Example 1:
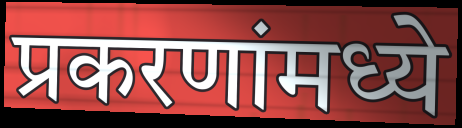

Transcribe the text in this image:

प्रकरणांमध्ये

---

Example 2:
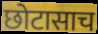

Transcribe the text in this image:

छोटासाच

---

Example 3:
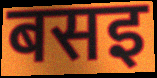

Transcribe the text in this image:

बसइ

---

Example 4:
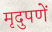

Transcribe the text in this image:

मृदुपणें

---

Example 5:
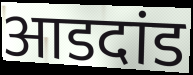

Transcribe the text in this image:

आडदांड